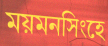
ময়মনসিংহে